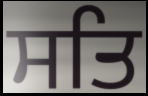
ਸਤਿ